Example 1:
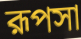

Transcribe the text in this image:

রূপসা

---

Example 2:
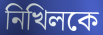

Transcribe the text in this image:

নিখিলকে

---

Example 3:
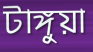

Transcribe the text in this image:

টাঙ্গুয়া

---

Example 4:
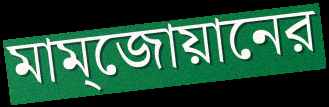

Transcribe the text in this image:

মাম্জোয়ানের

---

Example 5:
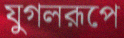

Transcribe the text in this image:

যুগলরূপে